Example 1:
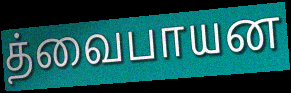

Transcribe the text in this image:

த்வைபாயன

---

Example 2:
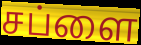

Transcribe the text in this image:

சப்ளை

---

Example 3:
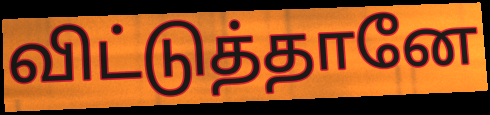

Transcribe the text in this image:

விட்டுத்தானே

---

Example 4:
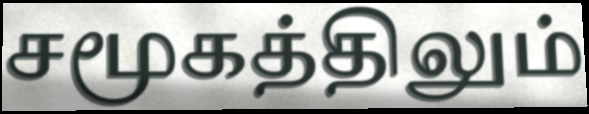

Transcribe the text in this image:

சமூகத்திலும்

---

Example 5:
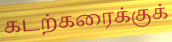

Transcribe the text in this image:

கடற்கரைக்குக்